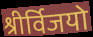
श्रीर्विजयो